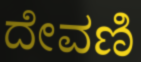
ದೇವಣಿ